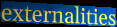
externalities